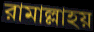
রামাল্লাহয়